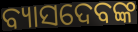
ବ୍ୟାସଦେବଙ୍କ